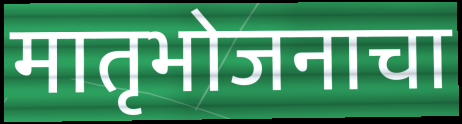
मातृभोजनाचा